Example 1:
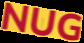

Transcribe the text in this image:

NUG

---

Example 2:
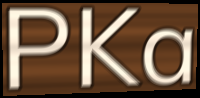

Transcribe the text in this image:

PKa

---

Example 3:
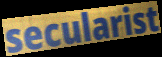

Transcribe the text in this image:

secularist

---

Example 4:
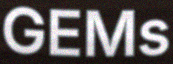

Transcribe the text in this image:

GEMs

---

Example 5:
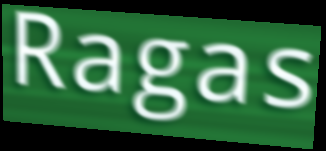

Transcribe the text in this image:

Ragas